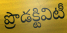
ప్రొడక్టివిటీ